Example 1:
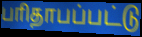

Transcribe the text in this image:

பரிதாபப்பட்டு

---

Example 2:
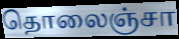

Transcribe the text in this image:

தொலைஞ்சா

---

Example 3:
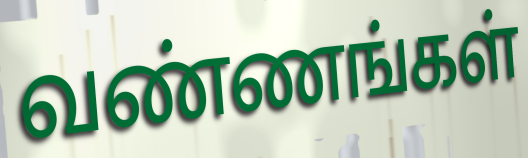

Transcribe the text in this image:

வண்ணங்கள்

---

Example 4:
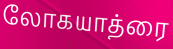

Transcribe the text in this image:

லோகயாத்ரை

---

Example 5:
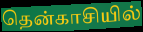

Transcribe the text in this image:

தென்காசியில்